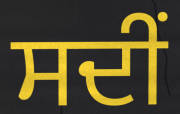
ਸਦੀਂ